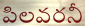
పిలవరనీ